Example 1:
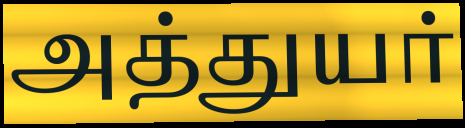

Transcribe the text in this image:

அத்துயர்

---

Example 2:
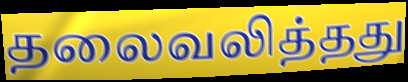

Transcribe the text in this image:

தலைவலித்தது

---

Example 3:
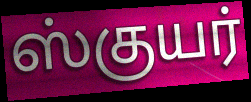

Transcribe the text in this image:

ஸ்குயர்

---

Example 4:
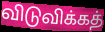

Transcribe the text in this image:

விடுவிக்கத்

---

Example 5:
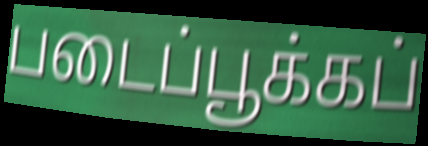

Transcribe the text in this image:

படைப்பூக்கப்